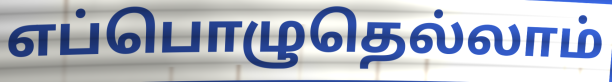
எப்பொழுதெல்லாம்